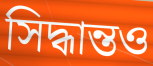
সিদ্ধান্তও